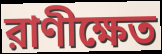
রাণীক্ষেত